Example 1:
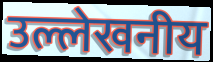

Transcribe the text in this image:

उल्लेखनीय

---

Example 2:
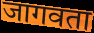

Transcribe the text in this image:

जागवता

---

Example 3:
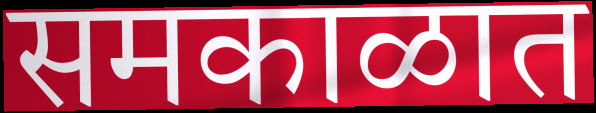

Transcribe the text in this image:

समकाळात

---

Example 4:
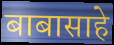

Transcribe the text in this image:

बाबासाहे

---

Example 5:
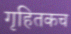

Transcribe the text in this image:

गृहितकच